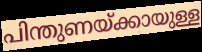
പിന്തുണയ്ക്കായുള്ള